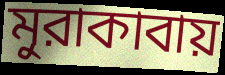
মুরাকাবায়